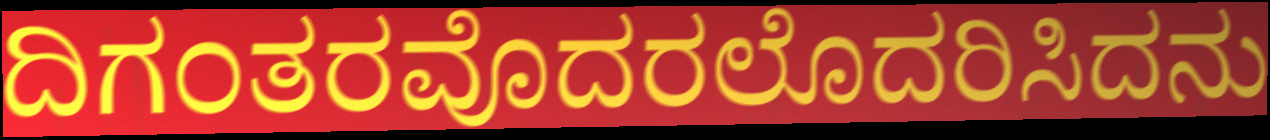
ದಿಗಂತರವೊದರಲೊದರಿಸಿದನು